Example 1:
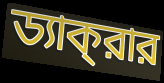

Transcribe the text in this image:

ড্যাক্‌রার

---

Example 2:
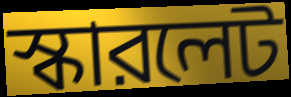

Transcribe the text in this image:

স্কারলেট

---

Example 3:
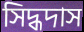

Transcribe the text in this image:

সিদ্ধদাস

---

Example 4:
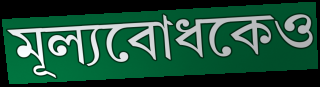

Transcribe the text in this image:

মূল্যবোধকেও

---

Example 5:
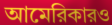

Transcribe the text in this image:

আমেরিকারও